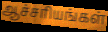
ஆச்சரியங்கள்